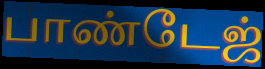
பாண்டேஜ்